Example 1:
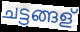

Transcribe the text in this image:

ചട്ടങ്ങള്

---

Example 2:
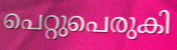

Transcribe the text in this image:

പെറ്റുപെരുകി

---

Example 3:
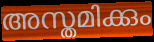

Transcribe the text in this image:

അസ്തമിക്കും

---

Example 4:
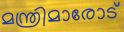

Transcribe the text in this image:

മന്ത്രിമാരോട്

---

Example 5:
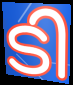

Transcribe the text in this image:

ടി